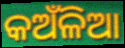
କଅଁଳିଆ